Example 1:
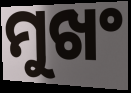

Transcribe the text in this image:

ମୁଖଂ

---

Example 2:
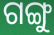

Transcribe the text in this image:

ଗଙ୍ଗୁ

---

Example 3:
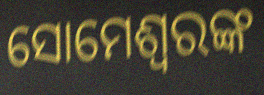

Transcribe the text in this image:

ସୋମେଶ୍ୱରଙ୍କ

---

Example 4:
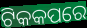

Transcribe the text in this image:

ଟିକକପରେ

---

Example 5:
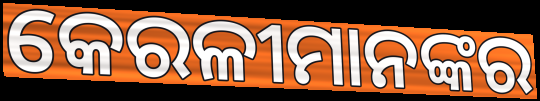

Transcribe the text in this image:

କେରଳୀମାନଙ୍କର